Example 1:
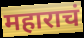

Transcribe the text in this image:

महाराचं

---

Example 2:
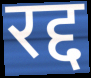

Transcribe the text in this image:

रद्द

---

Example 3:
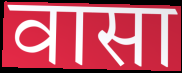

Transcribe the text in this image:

वासा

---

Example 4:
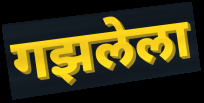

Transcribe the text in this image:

गझलेला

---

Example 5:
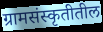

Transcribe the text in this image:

ग्रामसंस्कृतीतील